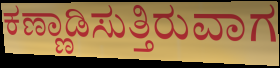
ಕಣ್ಣಾಡಿಸುತ್ತಿರುವಾಗ